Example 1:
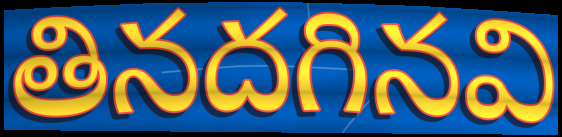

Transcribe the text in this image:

తినదగినవి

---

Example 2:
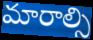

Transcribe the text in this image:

మారాల్సి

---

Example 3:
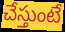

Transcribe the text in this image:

చేస్తుంటే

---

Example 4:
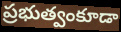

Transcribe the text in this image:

ప్రభుత్వంకూడా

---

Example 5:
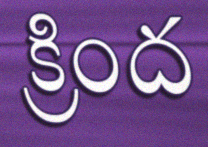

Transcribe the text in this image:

క్రింద